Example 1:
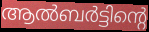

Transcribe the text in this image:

ആൽബർട്ടിന്റെ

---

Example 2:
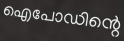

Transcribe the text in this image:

ഐപോഡിന്റെ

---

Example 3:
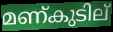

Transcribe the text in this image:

മണ്കുടില്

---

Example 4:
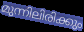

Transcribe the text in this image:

മുന്നിലിരിക്കും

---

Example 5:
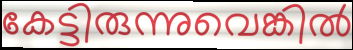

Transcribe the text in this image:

കേട്ടിരുന്നുവെങ്കിൽ